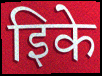
इिके